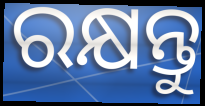
ରକ୍ଷନ୍ତୁ